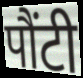
पौंटी